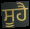
ਸੂਹੈ